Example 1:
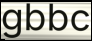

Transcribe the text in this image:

gbbc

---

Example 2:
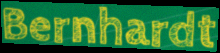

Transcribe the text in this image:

Bernhardt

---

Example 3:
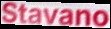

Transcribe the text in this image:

Stavano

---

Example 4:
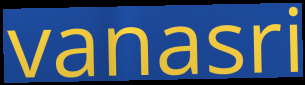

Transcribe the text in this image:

vanasri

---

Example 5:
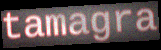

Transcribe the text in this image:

tamagra